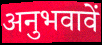
अनुभवावें